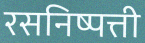
रसनिष्पत्ती